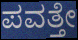
ಪವತ್ತೇ